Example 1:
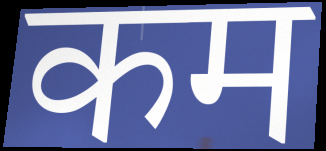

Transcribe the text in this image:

कम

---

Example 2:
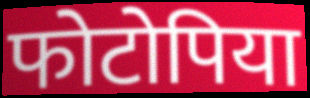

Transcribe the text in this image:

फोटोपिया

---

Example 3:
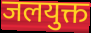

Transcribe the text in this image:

जलयुक्त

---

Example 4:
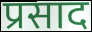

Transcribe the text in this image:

प्रसाद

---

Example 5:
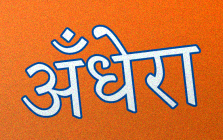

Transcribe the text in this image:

अँधेरा